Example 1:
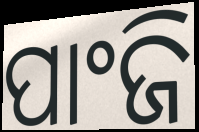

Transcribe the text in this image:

ପାଂଜି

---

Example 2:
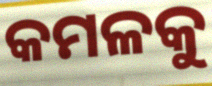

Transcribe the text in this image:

କମଳକୁ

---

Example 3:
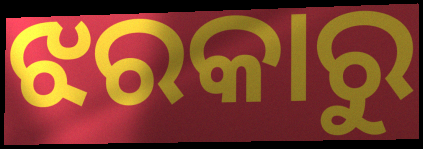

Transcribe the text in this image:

ଝରକାରୁ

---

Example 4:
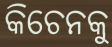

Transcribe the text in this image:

କିଚେନକୁ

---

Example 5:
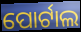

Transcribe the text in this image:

ପୋର୍ଟାଲ